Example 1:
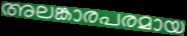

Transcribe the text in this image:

അലങ്കാരപരമായ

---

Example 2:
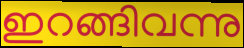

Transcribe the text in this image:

ഇറങ്ങിവന്നു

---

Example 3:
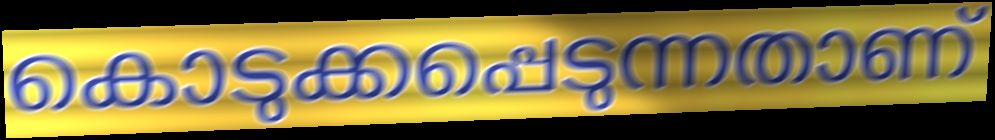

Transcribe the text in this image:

കൊടുക്കപ്പെടുന്നതാണ്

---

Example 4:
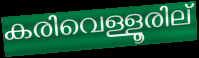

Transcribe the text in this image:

കരിവെള്ളൂരില്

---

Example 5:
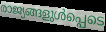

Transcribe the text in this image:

രാജ്യങ്ങളുൾപ്പെടെ